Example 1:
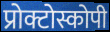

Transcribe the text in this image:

प्रोक्टोस्कोपी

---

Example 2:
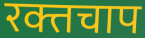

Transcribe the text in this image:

रक्तचाप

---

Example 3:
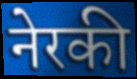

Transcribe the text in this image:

नेरकी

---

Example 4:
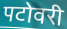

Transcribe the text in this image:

पटोवरी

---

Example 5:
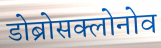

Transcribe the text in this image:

डोब्रोसक्लोनोव